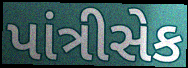
પાંત્રીસેક